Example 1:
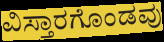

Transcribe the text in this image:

ವಿಸ್ತಾರಗೊಂಡವು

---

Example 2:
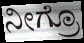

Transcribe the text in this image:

ನೀಗ್ರೊ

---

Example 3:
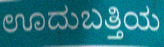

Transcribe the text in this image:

ಊದುಬತ್ತಿಯ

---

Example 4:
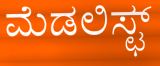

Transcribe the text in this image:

ಮೆಡಲಿಸ್ಟ್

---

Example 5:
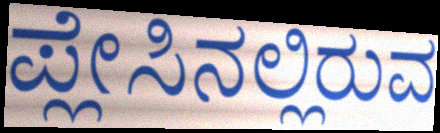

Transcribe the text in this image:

ಪ್ಲೇಸಿನಲ್ಲಿರುವ